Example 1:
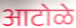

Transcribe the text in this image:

आटोळे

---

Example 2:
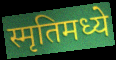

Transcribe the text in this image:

स्मृतिमध्ये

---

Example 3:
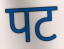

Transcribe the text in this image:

पट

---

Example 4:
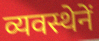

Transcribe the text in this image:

व्यवस्थेनें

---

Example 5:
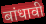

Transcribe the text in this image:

बांधावी